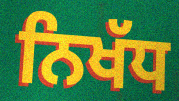
ਨਿਖੱਧ